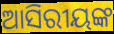
ଆସିରୀୟଙ୍କ